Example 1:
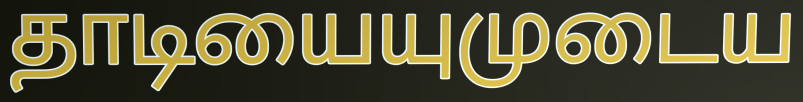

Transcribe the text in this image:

தாடியையுமுடைய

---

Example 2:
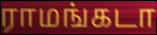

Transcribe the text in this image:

ராமங்கடா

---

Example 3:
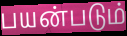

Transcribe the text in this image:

பயன்படும்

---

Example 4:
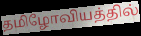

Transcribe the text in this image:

தமிழோவியத்தில்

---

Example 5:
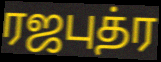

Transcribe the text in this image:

ரஜபுத்ர